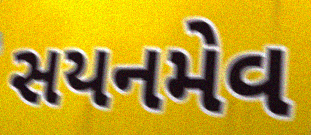
સયનમેવ